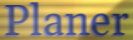
Planer